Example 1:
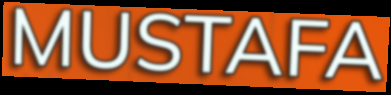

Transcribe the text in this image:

MUSTAFA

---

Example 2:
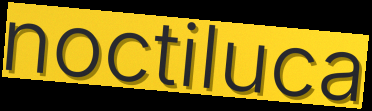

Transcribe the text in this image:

noctiluca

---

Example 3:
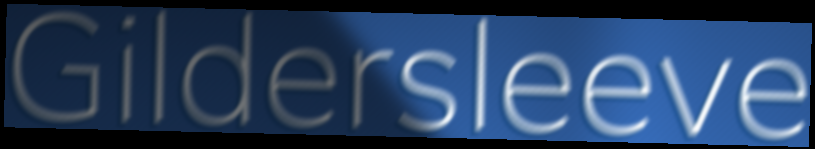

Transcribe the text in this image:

Gildersleeve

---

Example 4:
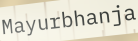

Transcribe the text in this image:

Mayurbhanja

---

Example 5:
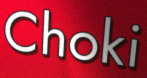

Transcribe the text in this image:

Choki